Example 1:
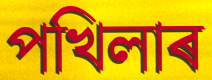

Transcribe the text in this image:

পখিলাৰ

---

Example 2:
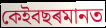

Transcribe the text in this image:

কেইবছৰমানত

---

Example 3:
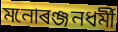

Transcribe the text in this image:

মনোৰঞ্জনধৰ্মী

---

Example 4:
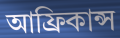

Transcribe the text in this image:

আফ্ৰিকান্স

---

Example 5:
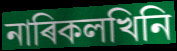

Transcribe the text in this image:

নাৰিকলখিনি